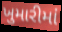
ખુમારીમાં